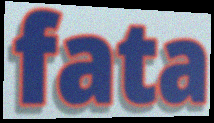
fata